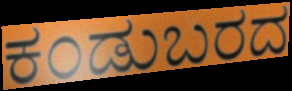
ಕಂಡುಬರದ